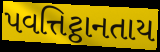
પવત્તિટ્ઠાનતાય